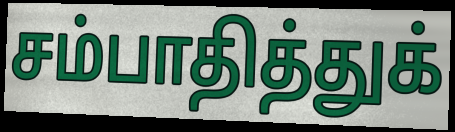
சம்பாதித்துக்